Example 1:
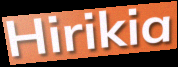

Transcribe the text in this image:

Hirikia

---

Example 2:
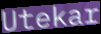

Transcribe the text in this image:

Utekar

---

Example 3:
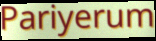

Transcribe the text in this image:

Pariyerum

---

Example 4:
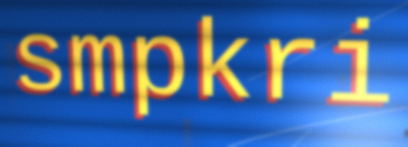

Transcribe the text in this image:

smpkri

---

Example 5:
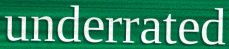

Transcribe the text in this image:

underrated